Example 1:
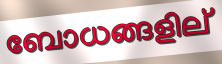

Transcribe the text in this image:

ബോധങ്ങളില്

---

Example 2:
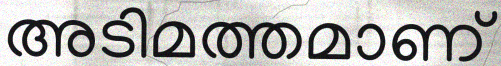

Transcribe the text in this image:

അടിമത്തമാണ്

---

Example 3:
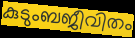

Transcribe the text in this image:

കുടുംബജീവിതം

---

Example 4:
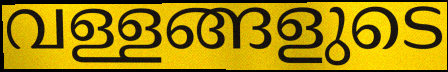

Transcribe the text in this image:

വള്ളങ്ങളുടെ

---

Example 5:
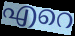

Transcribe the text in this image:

എറെ